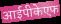
आईपीकेएफ